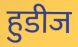
हुडीज